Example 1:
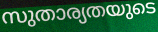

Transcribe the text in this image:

സുതാര്യതയുടെ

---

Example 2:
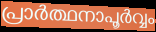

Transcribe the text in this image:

പ്രാർത്ഥനാപൂർവ്വം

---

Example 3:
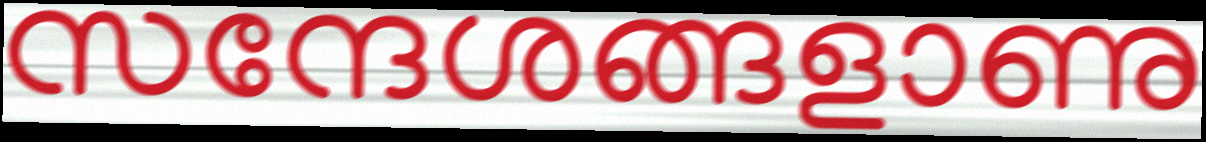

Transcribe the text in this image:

സന്ദേശങ്ങളാണു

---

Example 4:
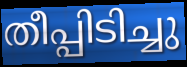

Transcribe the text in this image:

തീപ്പിടിച്ചു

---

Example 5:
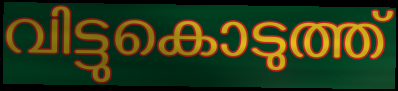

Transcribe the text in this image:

വിട്ടുകൊടുത്ത്